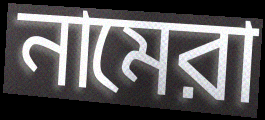
নামেরা